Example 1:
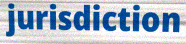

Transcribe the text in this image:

jurisdiction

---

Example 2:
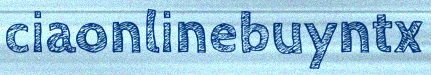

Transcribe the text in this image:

ciaonlinebuyntx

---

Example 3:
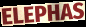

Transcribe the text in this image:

ELEPHAS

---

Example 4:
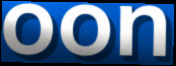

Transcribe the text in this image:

oon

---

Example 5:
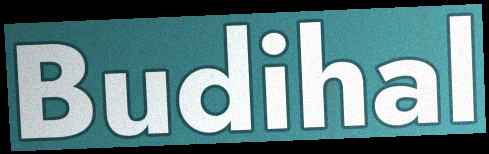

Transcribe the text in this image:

Budihal